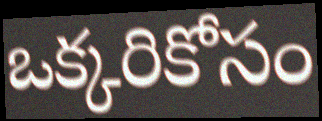
ఒక్కరికోసం